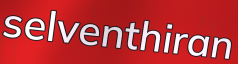
selventhiran